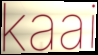
kaai